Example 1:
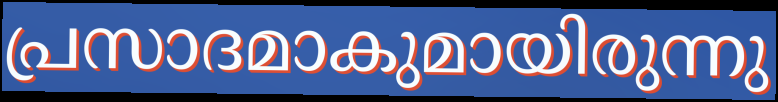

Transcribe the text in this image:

പ്രസാദമാകുമായിരുന്നു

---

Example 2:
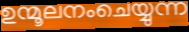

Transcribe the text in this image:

ഉന്മൂലനംചെയ്യുന്ന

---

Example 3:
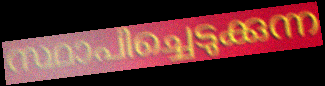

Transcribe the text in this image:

സ്ഥാപിച്ചെടുക്കുന്ന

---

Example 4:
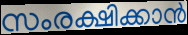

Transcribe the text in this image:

സംരക്ഷിക്കാൻ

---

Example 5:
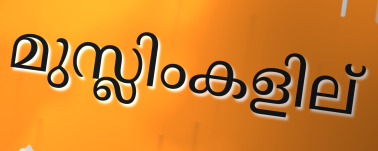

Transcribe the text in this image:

മുസ്ലിംകളില്